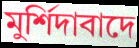
মুর্শিদাবাদে